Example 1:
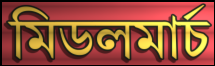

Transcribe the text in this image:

মিডলমাৰ্চ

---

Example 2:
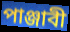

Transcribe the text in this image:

পাঞ্জাবী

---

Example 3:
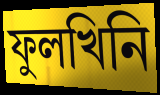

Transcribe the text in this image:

ফুলখিনি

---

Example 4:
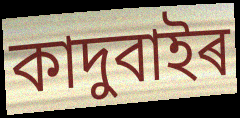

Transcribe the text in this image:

কাদুবাইৰ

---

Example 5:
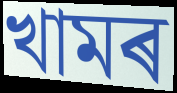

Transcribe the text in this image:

খামৰ